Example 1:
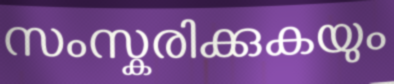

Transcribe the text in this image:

സംസ്കരിക്കുകയും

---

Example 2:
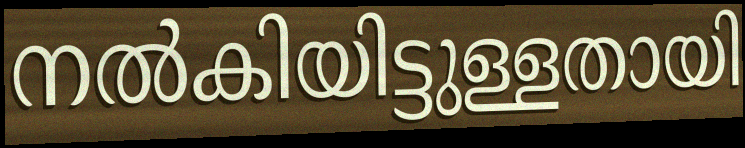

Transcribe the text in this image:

നൽകിയിട്ടുള്ളതായി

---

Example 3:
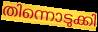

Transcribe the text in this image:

തിന്നൊടുക്കി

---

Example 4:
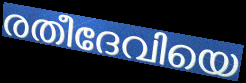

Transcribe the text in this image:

രതീദേവിയെ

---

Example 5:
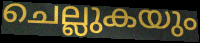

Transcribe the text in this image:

ചെല്ലുകയും